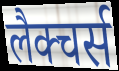
लैक्चर्स